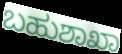
ಬಹುಶಾಖಾ